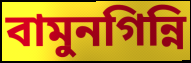
বামুনগিন্নি